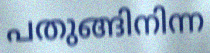
പതുങ്ങിനിന്ന